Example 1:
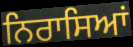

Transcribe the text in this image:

ਨਿਰਾਸਿਆਂ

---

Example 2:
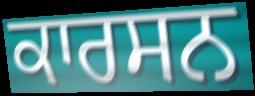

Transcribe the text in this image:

ਕਾਰਸਨ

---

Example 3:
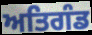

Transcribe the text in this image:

ਅਤਿਗੰਡ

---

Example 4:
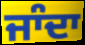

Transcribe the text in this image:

ਜਾੰਦਾ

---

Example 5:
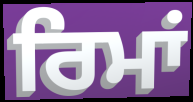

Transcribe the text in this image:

ਰਿਮਾਂ